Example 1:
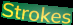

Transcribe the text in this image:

Strokes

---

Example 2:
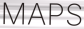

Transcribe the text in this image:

MAPS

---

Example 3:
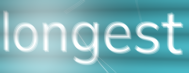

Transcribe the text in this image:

longest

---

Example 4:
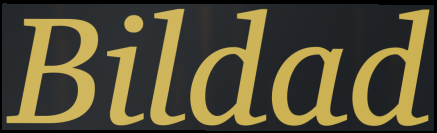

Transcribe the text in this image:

Bildad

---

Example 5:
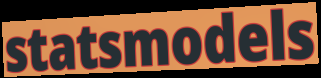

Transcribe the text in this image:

statsmodels